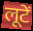
लूटें